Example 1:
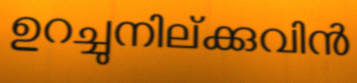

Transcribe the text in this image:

ഉറച്ചുനില്ക്കുവിൻ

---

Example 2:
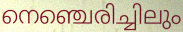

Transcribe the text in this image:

നെഞ്ചെരിച്ചിലും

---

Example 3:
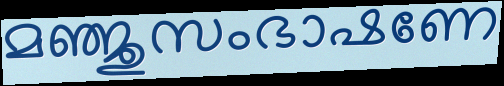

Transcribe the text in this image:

മഞ്ജുസംഭാഷണേ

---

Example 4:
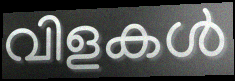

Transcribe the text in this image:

വിളകൾ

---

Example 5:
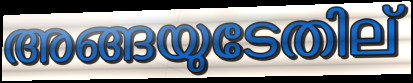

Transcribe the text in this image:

അങ്ങയുടേതില്